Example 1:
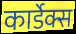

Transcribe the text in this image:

कार्डेक्स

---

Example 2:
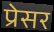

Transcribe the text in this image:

प्रेसर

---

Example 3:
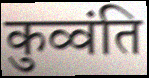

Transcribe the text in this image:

कुव्वंति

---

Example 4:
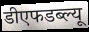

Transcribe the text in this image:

डीएफडब्ल्यू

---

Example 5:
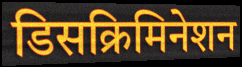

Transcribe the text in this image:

डिसक्रिमिनेशन